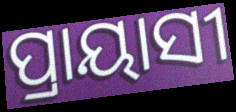
ପ୍ରାୟାସୀ